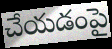
చేయడంపై